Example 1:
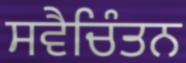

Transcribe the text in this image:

ਸਵੈਚਿੰਤਨ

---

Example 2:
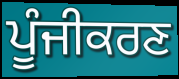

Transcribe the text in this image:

ਪੂੰਜੀਕਰਣ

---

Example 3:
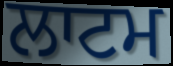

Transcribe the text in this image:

ਲਾਟਮ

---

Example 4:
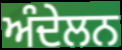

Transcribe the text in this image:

ਅੰਦੇਲਨ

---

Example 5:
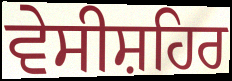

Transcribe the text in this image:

ਵੇਸੀਸ਼ਹਿਰ